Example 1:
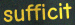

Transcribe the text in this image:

sufficit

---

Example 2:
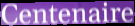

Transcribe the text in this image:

Centenaire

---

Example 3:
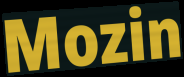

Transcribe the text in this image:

Mozin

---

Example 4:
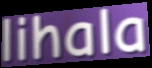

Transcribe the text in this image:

lihala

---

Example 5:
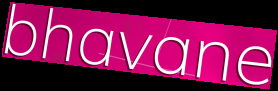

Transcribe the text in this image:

bhavane